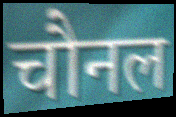
चौनल